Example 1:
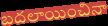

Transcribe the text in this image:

బదలాయించినా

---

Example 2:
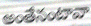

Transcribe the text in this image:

అంతేనంటావా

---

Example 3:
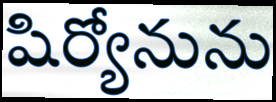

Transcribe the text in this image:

షిర్యోనును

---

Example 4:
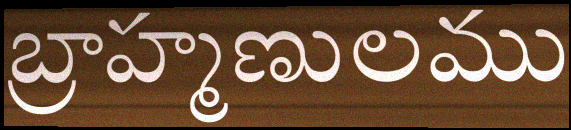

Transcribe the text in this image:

బ్రాహ్మణులము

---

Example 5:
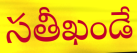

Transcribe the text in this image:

సతీఖండే